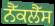
ਨੈੱਕਲੈੱਸ